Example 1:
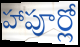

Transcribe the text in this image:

హాపూర్లో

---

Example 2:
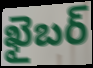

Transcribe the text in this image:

ఖైబర్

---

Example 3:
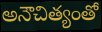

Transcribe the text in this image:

అనౌచిత్యంతో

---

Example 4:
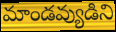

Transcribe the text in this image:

మాండవ్యుడిని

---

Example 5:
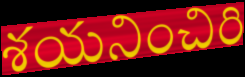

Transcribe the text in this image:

శయనించిరి